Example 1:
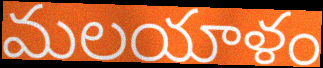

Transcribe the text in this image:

మలయాళం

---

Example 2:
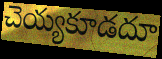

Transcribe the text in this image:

చెయ్యకూడదూ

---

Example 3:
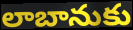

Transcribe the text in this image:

లాబానుకు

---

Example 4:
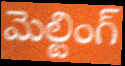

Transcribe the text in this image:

మెల్టింగ్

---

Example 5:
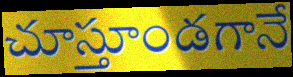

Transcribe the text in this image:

చూస్తూండగానే